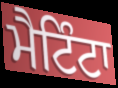
ਮੈਟਿੰਟਾ